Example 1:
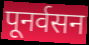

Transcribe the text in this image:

पूनर्वसन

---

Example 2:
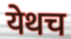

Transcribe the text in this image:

येथच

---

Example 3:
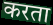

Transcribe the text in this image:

करता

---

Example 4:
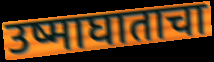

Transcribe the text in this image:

उष्माघाताचा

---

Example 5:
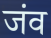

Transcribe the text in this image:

जंव